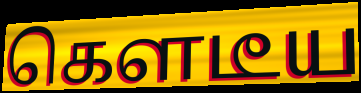
கௌடீய